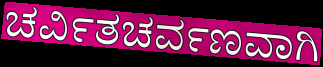
ಚರ್ವಿತಚರ್ವಣವಾಗಿ